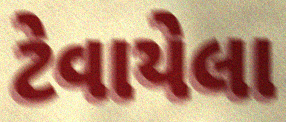
ટેવાયેલા